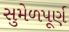
સુમેળપૂર્ણ